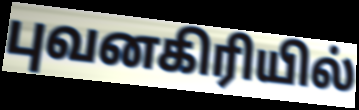
புவனகிரியில்